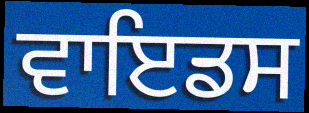
ਵਾਇਡਸ